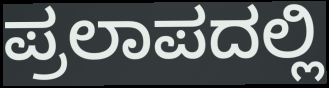
ಪ್ರಲಾಪದಲ್ಲಿ